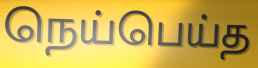
நெய்பெய்த